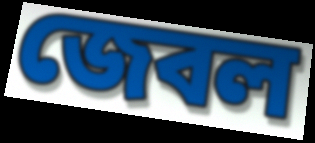
জেবল